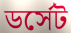
ডর্সেট